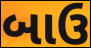
બાઉ